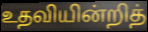
உதவியின்றித்